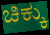
ಚಿಕ್ಕು